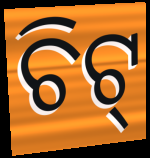
ଚିଟ୍